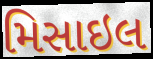
મિસાઇલ